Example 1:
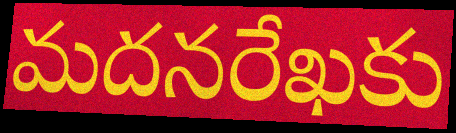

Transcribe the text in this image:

మదనరేఖకు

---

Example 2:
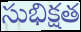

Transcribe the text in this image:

సుభిక్షత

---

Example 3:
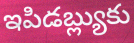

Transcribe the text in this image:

ఇపిడబ్ల్యుకు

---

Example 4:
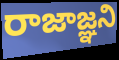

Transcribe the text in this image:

రాజాజ్ఞని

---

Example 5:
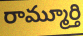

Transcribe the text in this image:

రామ్మూర్తి